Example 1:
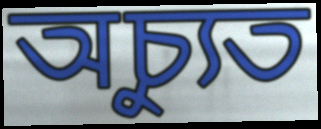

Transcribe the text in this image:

অচ্যুত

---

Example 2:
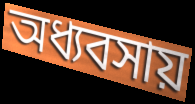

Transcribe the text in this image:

অধ্যবসায়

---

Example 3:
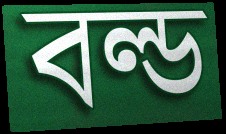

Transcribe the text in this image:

বল্ড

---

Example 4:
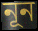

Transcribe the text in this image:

নূন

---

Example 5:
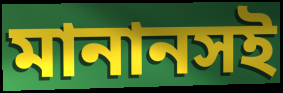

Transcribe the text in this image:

মানানসই